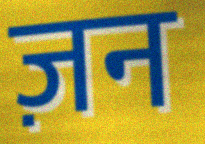
ज़न